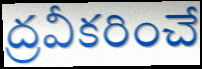
ద్రవీకరించే